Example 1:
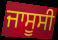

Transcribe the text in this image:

ਜਾਸੂਸੀ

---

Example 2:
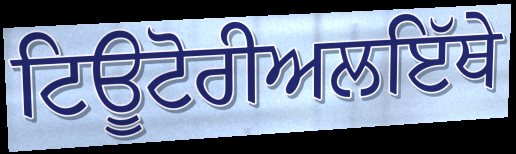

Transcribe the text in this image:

ਟਿਊਟੋਰੀਅਲਇੱਥੇ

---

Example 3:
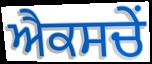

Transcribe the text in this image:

ਐਕਸਚੇਂ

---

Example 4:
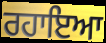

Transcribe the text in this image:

ਰਹਾਇਆ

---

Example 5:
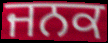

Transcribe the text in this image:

ਜਨਕ